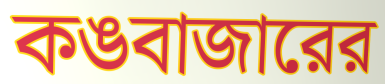
কঙবাজারের